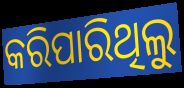
କରିପାରିଥିଲୁ